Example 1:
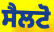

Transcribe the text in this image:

ਸੈਲਟੋ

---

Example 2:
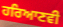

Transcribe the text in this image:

ਹਰਿਆਣਵੀ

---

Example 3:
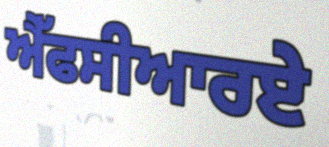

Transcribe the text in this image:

ਐੱਫਸੀਆਰਏ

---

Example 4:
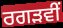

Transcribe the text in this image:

ਰਗੜਵੀਂ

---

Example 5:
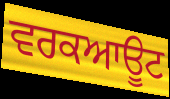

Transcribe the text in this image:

ਵਰਕਆਊਟ